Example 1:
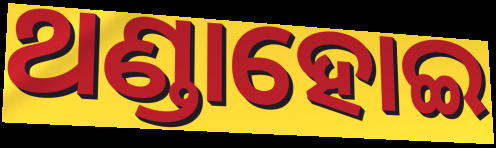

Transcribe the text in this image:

ଥଣ୍ଡାହୋଇ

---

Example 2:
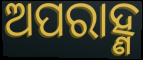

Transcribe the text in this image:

ଅପରାହ୍ଣ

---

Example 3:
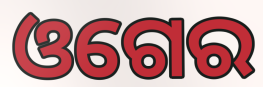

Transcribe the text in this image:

ଓଗେର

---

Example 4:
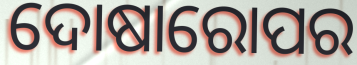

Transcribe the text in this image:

ଦୋଷାରୋପର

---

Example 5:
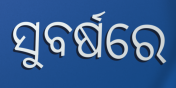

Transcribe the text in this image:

ସୁବର୍ଷରେ